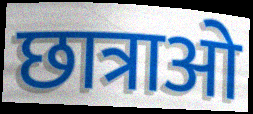
छात्राओ